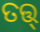
ତତ୍ତ୍